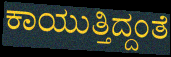
ಕಾಯುತ್ತಿದ್ದಂತೆ